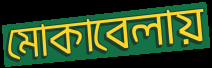
মোকাবেলায়